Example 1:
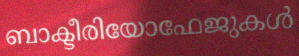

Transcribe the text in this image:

ബാക്ടീരിയോഫേജുകൾ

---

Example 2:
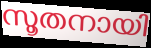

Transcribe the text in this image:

സൂതനായി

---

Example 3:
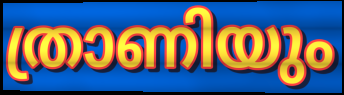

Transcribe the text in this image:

ത്രാണിയും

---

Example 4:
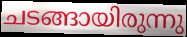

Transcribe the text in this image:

ചടങ്ങായിരുന്നു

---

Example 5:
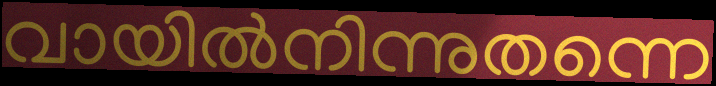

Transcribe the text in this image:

വായിൽനിന്നുതന്നെ